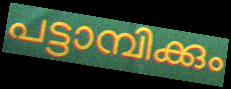
പട്ടാമ്പിക്കും